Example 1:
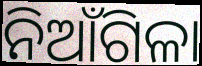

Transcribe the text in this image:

ନିଆଁଗିଳା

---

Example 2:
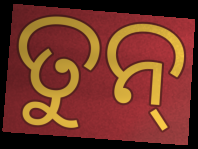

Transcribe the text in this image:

ତୁନ୍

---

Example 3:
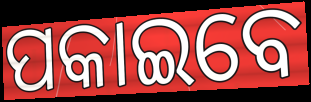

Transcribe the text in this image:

ପକାଇବେ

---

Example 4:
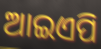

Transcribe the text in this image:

ଆଇଏପି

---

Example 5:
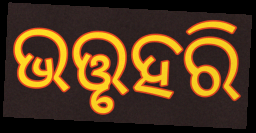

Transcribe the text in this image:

ଭତ୍ତୃହରି